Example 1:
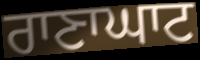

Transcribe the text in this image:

ਰਾਣਾਘਾਟ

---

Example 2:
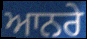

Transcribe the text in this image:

ਆਨਰੇ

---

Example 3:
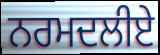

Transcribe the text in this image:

ਨਰਮਦਲੀਏ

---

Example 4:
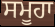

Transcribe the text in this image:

ਸਮੂਹਾ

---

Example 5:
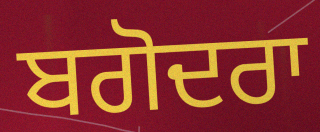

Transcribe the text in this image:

ਬਗੋਦਰਾ